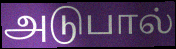
அடுபால்